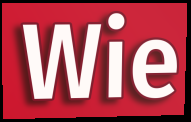
Wie